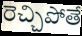
రెచ్చిపోతే